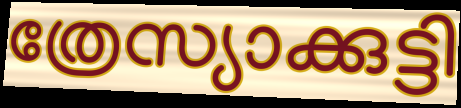
ത്രേസ്യാക്കുട്ടി